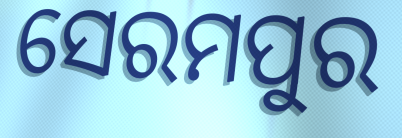
ସେରମପୁର